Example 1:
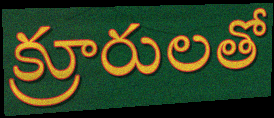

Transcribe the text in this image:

క్రూరులతో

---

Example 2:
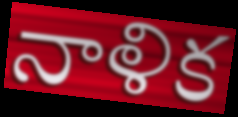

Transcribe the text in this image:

నాళిక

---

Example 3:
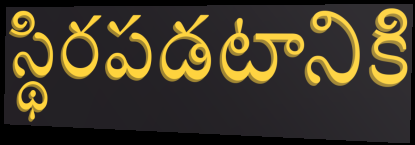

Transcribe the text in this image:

స్థిరపడటానికి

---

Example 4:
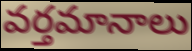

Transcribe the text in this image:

వర్తమానాలు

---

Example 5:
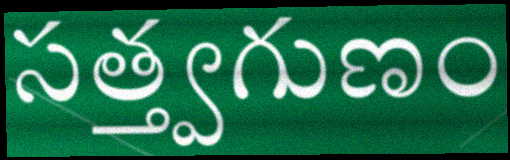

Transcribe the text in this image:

సత్త్వగుణం